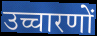
उच्चारणों